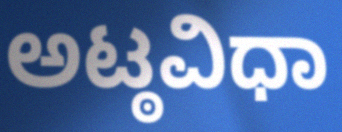
ಅಟ್ಠವಿಧಾ